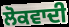
ਲੋਕਵਾਦੀ